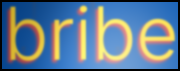
bribe